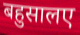
बहुसालए